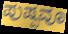
ಪುಷ್ಪವೂ